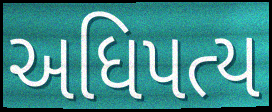
અધિપત્ય